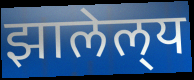
झालेल्य